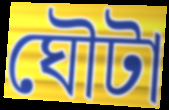
ঘৌটা